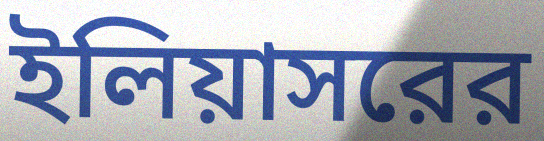
ইলিয়াসরের